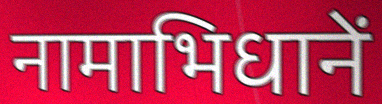
नामाभिधानें